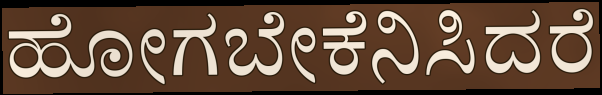
ಹೋಗಬೇಕೆನಿಸಿದರೆ